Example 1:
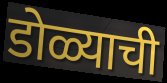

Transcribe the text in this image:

डोळ्याची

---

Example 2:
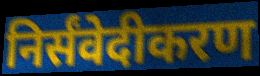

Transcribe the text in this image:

निर्संवेदीकरण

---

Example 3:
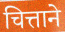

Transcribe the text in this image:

चित्ताने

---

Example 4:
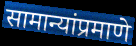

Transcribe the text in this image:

सामान्यांप्रमाणे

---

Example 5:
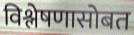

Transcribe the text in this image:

विश्लेषणासोबत